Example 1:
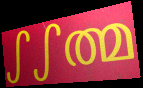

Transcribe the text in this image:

ഽഽത്മ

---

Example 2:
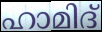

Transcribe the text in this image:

ഹാമിദ്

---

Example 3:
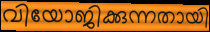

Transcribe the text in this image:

വിയോജിക്കുന്നതായി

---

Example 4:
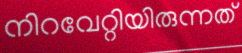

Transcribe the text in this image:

നിറവേറ്റിയിരുന്നത്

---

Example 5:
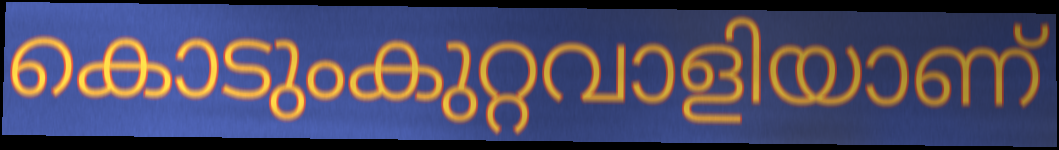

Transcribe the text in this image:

കൊടുംകുറ്റവാളിയാണ്